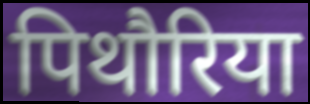
पिथौरिया